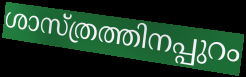
ശാസ്ത്രത്തിനപ്പുറം